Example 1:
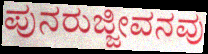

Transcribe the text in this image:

ಪುನರುಜ್ಜೀವನವು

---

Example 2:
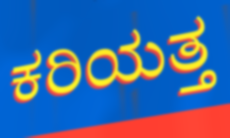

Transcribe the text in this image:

ಕರಿಯತ್ತ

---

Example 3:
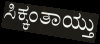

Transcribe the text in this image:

ಸಿಕ್ಕಂತಾಯ್ತು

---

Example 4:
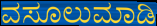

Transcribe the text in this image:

ವಸೂಲುಮಾಡಿ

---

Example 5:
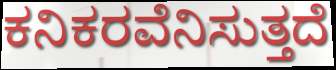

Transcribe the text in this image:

ಕನಿಕರವೆನಿಸುತ್ತದೆ